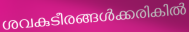
ശവകുടീരങ്ങൾക്കരികിൽ